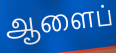
ஆளைப்